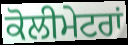
ਕੋਲੀਮੇਟਰਾਂ